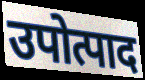
उपोत्पाद